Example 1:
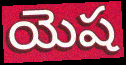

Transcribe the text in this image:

యెష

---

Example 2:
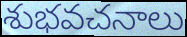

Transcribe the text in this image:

శుభవచనాలు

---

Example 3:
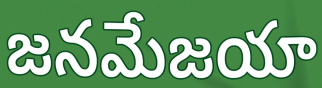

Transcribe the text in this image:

జనమేజయా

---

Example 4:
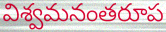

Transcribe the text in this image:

విశ్వమనంతరూప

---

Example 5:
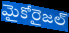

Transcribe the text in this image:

మైకోరైజల్